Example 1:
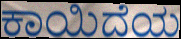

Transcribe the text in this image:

ಕಾಯಿದೆಯ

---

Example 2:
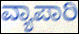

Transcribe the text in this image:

ವ್ಯಾಪಾರಿ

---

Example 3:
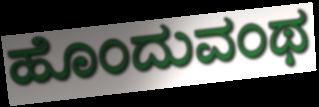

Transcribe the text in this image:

ಹೊಂದುವಂಥ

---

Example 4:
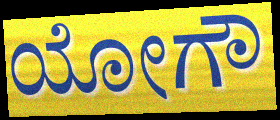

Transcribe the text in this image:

ಯೋಗೌ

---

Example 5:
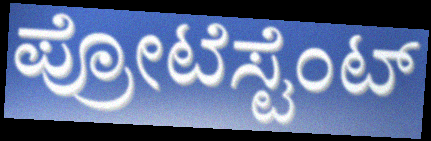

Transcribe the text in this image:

ಪ್ರೋಟೆಸ್ಟೆಂಟ್